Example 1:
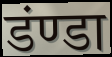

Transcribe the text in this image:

डंण्डा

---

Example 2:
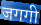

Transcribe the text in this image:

जगगी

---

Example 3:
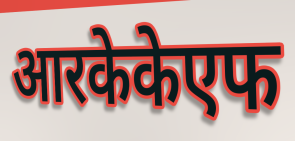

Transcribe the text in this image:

आरकेकेएफ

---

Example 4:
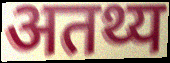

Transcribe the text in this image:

अतथ्य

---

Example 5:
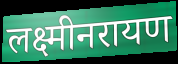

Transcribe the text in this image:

लक्ष्मीनरायण